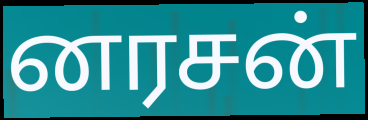
னரசன்